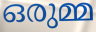
ഒരുമ്മ